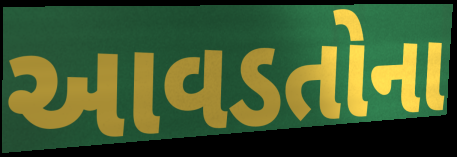
આવડતોના